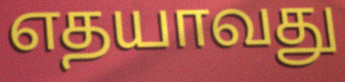
எதயாவது